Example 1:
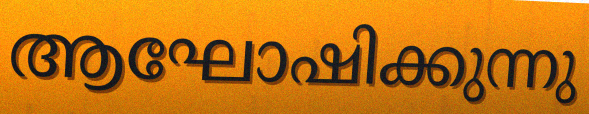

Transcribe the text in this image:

ആഘോഷിക്കുന്നു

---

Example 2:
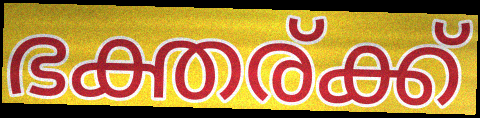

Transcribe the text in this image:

ഭക്തര്ക്ക്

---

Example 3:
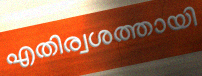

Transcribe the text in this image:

എതിര്വശത്തായി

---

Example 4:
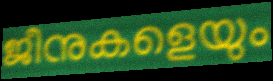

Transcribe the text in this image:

ജീനുകളെയും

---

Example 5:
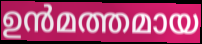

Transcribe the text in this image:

ഉൻമത്തമായ